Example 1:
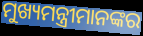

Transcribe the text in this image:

ମୁଖ୍ୟମନ୍ତ୍ରୀମାନଙ୍କର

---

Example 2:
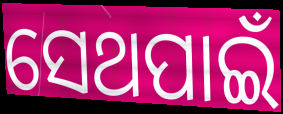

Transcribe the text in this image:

ସେଥପାଇଁ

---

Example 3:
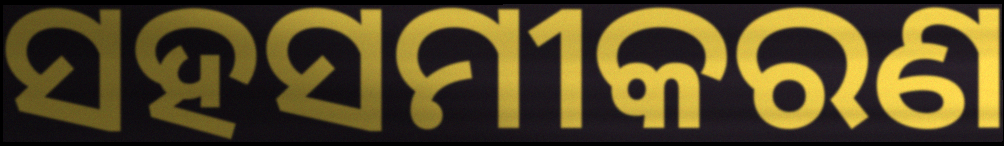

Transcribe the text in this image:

ସହସମୀକରଣ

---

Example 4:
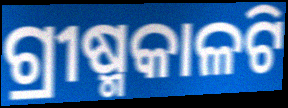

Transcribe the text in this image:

ଗ୍ରୀଷ୍ମକାଳଟି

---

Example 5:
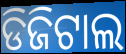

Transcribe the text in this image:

ଡିଜିଟାଲ